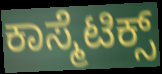
ಕಾಸ್ಮೆಟಿಕ್ಸ್